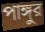
পাঙ্গুর